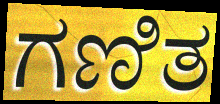
ಗಣಿತ